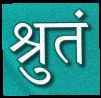
श्रुतं